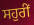
ਸਹੁਰੀਂ